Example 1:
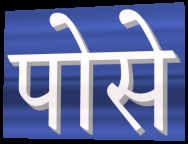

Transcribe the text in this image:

पोसे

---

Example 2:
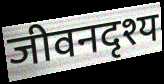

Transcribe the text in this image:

जीवनदृश्य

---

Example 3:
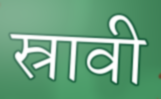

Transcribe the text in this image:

स्रावी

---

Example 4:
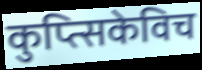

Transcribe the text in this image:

कुप्त्सिकेविच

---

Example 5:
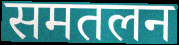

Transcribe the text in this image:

समतलन